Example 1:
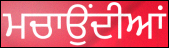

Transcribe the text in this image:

ਮਚਾਉਂਦੀਆਂ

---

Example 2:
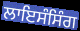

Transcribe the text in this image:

ਲਾਇਸੰਸਿੰਗ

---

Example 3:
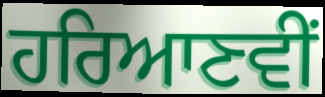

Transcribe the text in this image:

ਹਰਿਆਣਵੀਂ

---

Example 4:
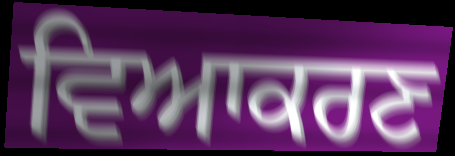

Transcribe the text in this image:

ਵਿਆਕਰਣ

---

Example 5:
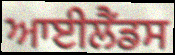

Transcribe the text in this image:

ਆਈਲੈਂਡਸ